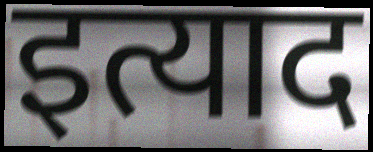
इत्याद